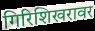
गिरिशिखरावर